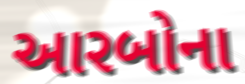
આરબોના